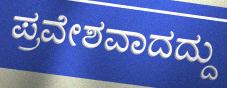
ಪ್ರವೇಶವಾದದ್ದು